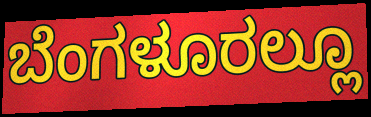
ಬೆಂಗಳೂರಲ್ಲೂ